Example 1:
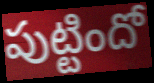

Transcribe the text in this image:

పుట్టిందో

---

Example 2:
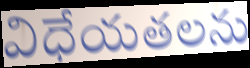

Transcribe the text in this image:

విధేయతలను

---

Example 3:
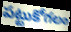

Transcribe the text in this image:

పట్టుకోగలం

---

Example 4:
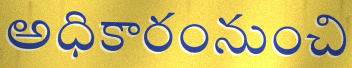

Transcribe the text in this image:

అధికారంనుంచి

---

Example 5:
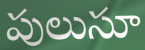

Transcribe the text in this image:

పులుసూ